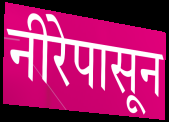
नीरेपासून